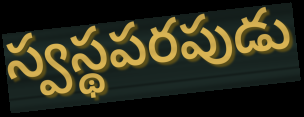
స్వస్థపరపుడు